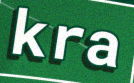
kra